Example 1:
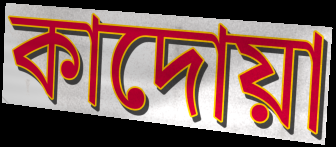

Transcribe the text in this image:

কাদোয়া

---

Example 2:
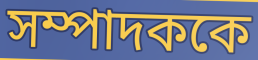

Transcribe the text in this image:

সম্পাদককে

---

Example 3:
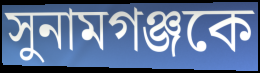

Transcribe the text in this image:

সুনামগঞ্জকে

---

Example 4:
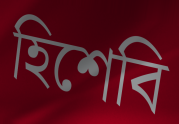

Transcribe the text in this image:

হিশেবি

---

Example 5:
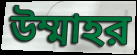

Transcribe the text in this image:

উম্মাহর